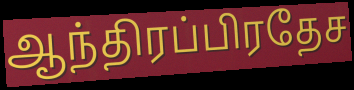
ஆந்திரப்பிரதேச